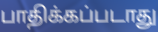
பாதிக்கப்படாது